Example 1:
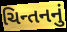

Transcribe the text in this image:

ચિન્તનનું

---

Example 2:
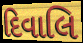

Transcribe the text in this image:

દિવાલિ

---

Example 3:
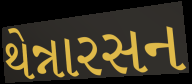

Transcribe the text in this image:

થેન્નારસન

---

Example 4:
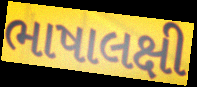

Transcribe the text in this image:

ભાષાલક્ષી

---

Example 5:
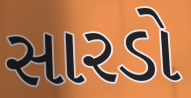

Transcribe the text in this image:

સારડો